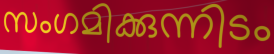
സംഗമിക്കുന്നിടം